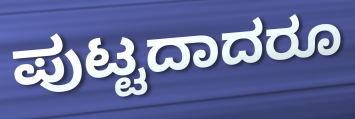
ಪುಟ್ಟದಾದರೂ